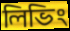
লিভিং